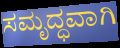
ಸಮೃದ್ಧವಾಗಿ